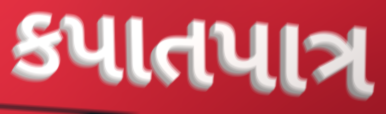
કપાતપાત્ર